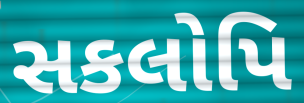
સકલોપિ